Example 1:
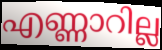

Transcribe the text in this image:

എണ്ണാറില്ല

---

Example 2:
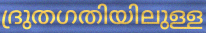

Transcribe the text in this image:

ദ്രുതഗതിയിലുള്ള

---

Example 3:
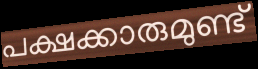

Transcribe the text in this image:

പക്ഷക്കാരുമുണ്ട്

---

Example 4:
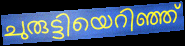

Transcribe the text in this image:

ചുരുട്ടിയെറിഞ്ഞ്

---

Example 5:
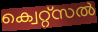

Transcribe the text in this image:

ക്വെറ്റ്സൽ